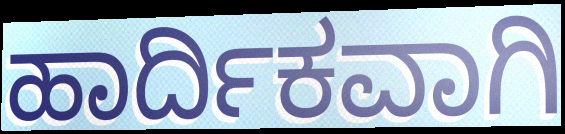
ಹಾರ್ದಿಕವಾಗಿ